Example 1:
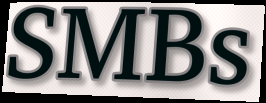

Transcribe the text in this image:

SMBs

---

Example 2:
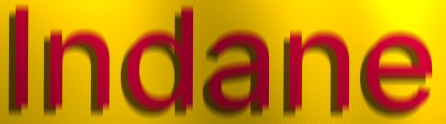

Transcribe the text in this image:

Indane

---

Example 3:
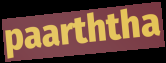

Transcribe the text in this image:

paarththa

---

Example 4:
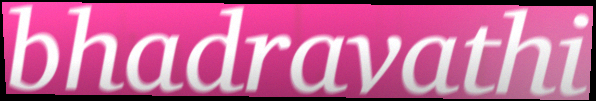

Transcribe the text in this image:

bhadravathi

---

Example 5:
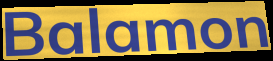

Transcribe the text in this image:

Balamon